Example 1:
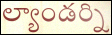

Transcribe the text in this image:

ల్యాండర్ని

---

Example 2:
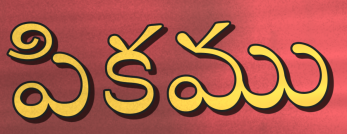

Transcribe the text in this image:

పికము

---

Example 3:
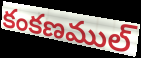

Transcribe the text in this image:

కంకణముల్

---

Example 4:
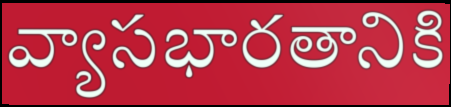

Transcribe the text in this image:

వ్యాసభారతానికి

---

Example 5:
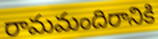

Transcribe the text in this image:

రామమందిరానికి